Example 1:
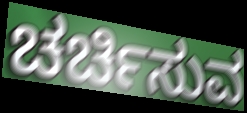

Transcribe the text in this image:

ಚರ್ಚಿಸುವ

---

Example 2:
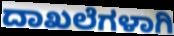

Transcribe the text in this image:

ದಾಖಲೆಗಳಾಗಿ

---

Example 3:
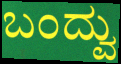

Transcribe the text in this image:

ಬಂದ್ವು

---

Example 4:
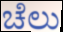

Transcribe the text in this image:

ಚೆಲು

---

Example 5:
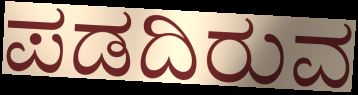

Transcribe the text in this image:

ಪಡದಿರುವ